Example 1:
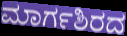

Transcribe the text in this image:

ಮಾರ್ಗಶಿರದ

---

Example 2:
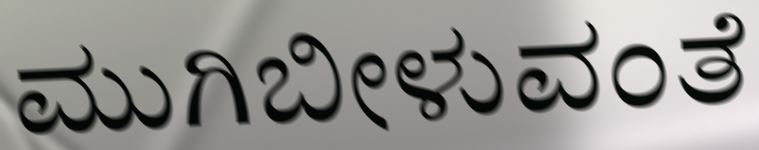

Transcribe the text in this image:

ಮುಗಿಬೀಳುವಂತೆ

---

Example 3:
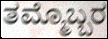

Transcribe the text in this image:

ತಮ್ಮೊಬ್ಬರ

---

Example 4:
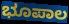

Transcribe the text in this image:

ಭೂಪಾಲ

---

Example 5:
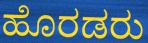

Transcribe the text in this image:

ಹೊರಡರು